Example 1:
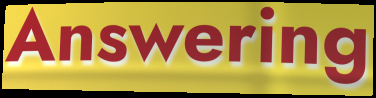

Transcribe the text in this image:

Answering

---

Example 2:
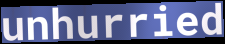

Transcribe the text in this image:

unhurried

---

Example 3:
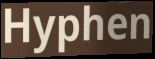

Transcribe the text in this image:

Hyphen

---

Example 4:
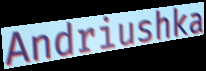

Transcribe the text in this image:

Andriushka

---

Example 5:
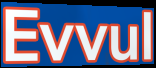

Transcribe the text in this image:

Evvul